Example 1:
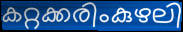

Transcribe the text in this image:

കറ്റക്കരിംകുഴലി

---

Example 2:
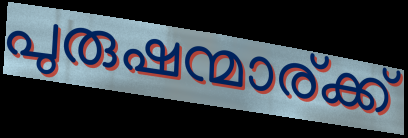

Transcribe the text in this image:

പുരുഷന്മാര്ക്ക്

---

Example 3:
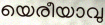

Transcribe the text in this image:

യെരീയാവു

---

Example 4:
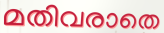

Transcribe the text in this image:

മതിവരാതെ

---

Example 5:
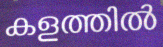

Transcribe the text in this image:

കളത്തിൽ